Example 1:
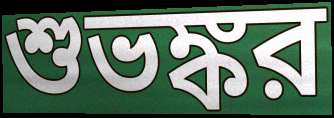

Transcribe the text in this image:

শুভঙ্কর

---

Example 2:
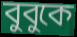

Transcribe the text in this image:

বুবুকে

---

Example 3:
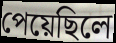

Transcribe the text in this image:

পেয়েছিলে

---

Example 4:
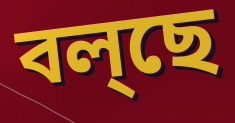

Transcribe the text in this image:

বল্ছে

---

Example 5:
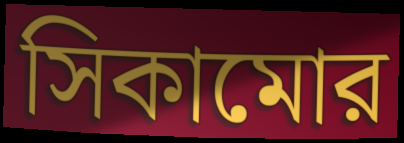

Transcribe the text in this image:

সিকামোর